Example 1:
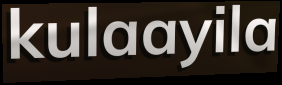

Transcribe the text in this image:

kulaayila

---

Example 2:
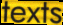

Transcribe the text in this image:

texts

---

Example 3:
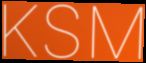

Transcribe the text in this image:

KSM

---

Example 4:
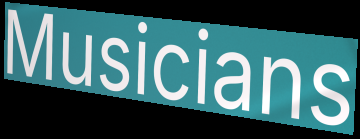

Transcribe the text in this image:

Musicians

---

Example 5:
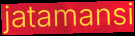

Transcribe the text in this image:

jatamansi